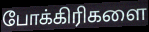
போக்கிரிகளை